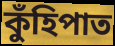
কুঁহিপাত